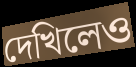
দেখিলেও